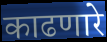
काढणारे